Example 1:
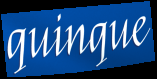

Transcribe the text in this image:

quinque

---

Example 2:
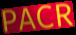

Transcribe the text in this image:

PACR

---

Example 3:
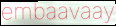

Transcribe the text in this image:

embaavaay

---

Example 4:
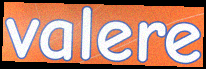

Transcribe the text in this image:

valere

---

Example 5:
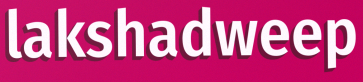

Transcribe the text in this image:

lakshadweep